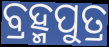
ବ୍ରହ୍ମପୁତ୍ର